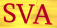
SVA